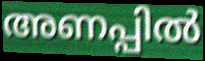
അണപ്പിൽ